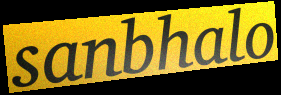
sanbhalo